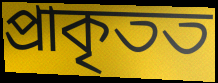
প্ৰাকৃতত